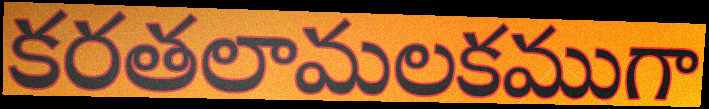
కరతలామలకముగా